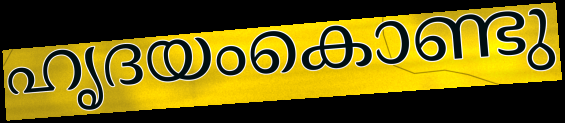
ഹൃദയംകൊണ്ടു